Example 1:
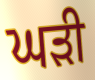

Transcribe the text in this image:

ਘਡ਼ੀ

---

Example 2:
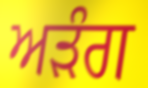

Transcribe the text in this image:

ਅੜੰਗ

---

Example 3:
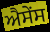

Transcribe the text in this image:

ਐਸੇਂਸ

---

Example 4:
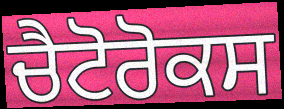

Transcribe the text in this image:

ਚੈਟੋਰੋਕਸ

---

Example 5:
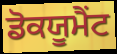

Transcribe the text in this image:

ਡੋਕਯੂਮੈਂਟ